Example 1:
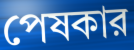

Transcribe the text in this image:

পেষকার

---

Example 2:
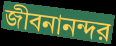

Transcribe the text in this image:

জীবনানন্দর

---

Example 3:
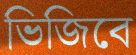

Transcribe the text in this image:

ভিজিবে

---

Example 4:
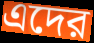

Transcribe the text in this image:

এদের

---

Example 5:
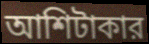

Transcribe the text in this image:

আশিটাকার